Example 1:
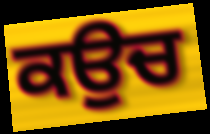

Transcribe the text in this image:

ਕਉਚ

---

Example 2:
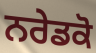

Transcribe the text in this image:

ਨਰੇਡਕੋ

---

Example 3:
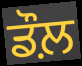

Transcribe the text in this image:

ਡੌਲ਼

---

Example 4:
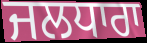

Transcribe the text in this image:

ਜਲਧਾਰਾ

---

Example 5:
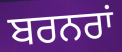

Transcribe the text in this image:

ਬਰਨਰਾਂ